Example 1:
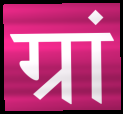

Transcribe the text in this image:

ग्रां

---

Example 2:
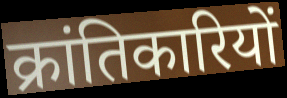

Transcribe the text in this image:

क्रांतिकारियों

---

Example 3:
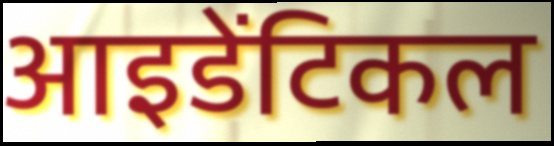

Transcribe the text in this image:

आइडेंटिकल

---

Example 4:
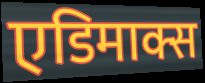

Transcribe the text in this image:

एडिमाक्स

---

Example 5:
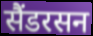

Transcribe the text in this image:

सैंडरसन